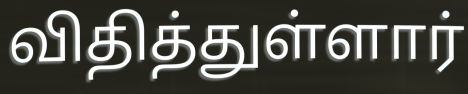
விதித்துள்ளார்